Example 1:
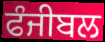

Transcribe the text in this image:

ਫੰਜੀਬਲ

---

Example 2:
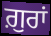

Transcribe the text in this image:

ਗ਼ੁਰਾਂ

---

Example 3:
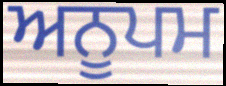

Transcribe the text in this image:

ਅਨੂਪਮ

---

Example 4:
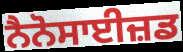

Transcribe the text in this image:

ਨੈਨੋਸਾਈਜ਼ਡ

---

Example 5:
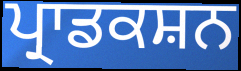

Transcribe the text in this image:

ਪ੍ਰਾਡਕਸ਼ਨ